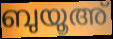
ബുയൂഅ്